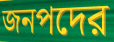
জনপদের